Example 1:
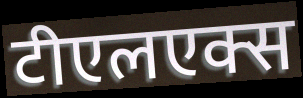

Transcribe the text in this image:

टीएलएक्स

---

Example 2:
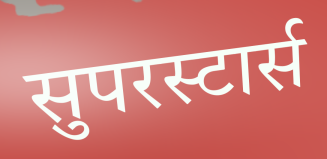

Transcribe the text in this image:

सुपरस्‍टार्स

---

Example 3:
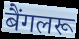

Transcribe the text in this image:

बैंगलरू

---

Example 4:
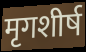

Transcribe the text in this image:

मृगशीर्ष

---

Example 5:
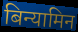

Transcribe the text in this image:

बिन्यामिन